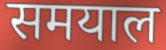
समयाल